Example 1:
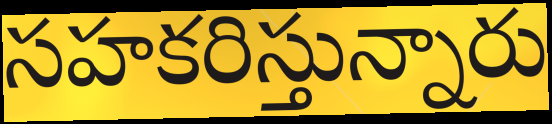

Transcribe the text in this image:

సహకరిస్తున్నారు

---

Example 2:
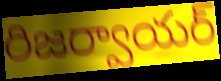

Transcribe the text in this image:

రిజర్వాయర్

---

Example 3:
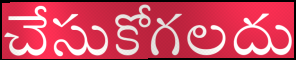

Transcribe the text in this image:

చేసుకోగలదు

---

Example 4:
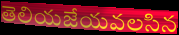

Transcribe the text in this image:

తెలియజేయవలసిన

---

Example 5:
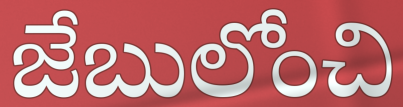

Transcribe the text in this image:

జేబులోంచి